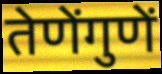
तेणेंगुणें